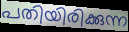
പതിയിരിക്കുന്ന